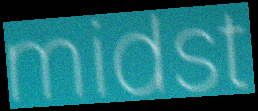
midst